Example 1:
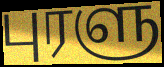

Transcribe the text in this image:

புரளு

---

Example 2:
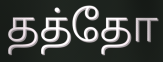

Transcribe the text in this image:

தத்தோ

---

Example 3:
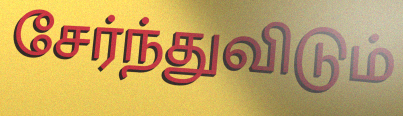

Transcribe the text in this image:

சேர்ந்துவிடும்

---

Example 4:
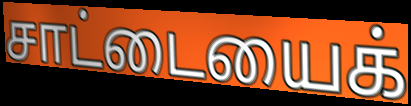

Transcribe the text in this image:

சாட்டையைக்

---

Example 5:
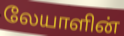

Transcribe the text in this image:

லேயாளின்